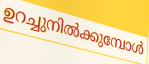
ഉറച്ചുനിൽക്കുമ്പോൾ